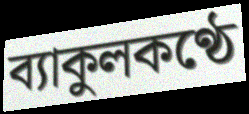
ব্যাকুলকণ্ঠে